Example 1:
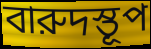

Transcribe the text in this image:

বারুদস্তূপ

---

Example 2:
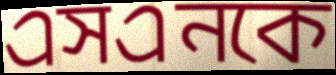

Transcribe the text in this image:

এসএনকে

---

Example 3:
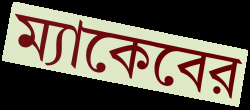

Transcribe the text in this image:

ম্যাকেবের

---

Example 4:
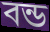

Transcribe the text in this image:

বন্ড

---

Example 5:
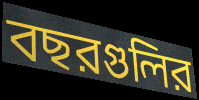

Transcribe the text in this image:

বছরগুলির